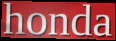
honda